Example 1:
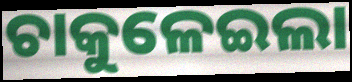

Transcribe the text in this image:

ଚାକୁଳେଇଲା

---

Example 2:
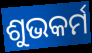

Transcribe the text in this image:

ଶୁଭକର୍ମ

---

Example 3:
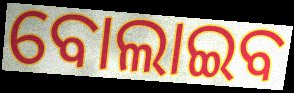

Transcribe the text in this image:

ବୋଲାଇବ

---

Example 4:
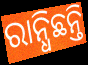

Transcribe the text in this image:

ରାନ୍ଧିଛନ୍ତି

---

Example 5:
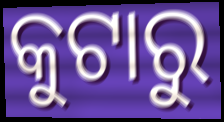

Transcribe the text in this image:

କୁଟାରୁ